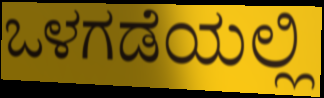
ಒಳಗಡೆಯಲ್ಲಿ